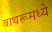
बाथरूमध्ये